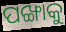
ପଙ୍ଖାକୁ